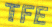
TFE